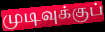
முடிவுக்குப்